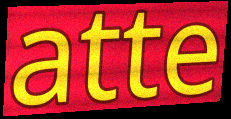
atte